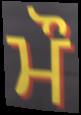
ਮੌ